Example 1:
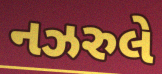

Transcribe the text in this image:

નઝરુલે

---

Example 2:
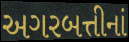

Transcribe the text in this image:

અગરબત્તીનાં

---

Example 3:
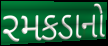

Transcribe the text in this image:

રમકડાનો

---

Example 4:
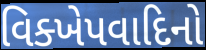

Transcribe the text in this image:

વિક્ખેપવાદિનો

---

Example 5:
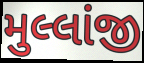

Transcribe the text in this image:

મુલ્લાંજી